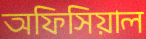
অফিসিয়াল